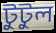
টুটুল